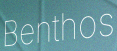
Benthos